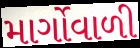
માર્ગોવાળી